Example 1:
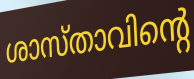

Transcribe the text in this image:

ശാസ്താവിന്റെ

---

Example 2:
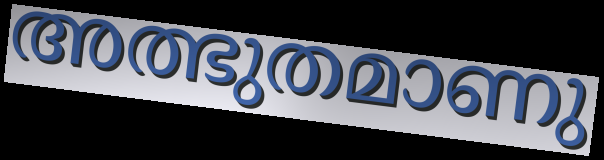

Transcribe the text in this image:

അത്ഭുതമാണു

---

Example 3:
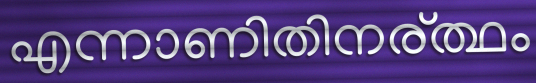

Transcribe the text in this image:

എന്നാണിതിനര്ത്ഥം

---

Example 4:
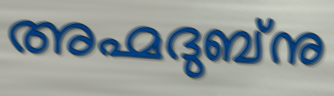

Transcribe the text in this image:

അഹ്മദുബ്നു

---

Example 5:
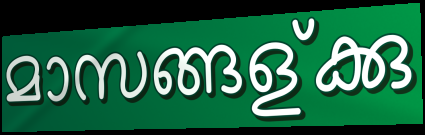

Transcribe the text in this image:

മാസങ്ങള്ക്കു